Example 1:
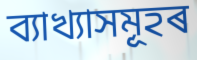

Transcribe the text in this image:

ব্যাখ্যাসমূহৰ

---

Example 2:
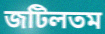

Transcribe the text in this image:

জটিলতম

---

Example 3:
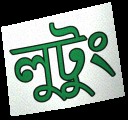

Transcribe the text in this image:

লুটুং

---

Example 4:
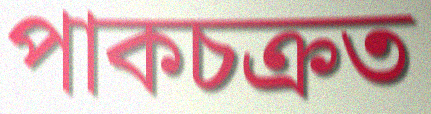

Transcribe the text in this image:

পাকচক্ৰত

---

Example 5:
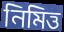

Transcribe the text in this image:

নিমিত্ত